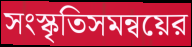
সংস্কৃতিসমন্বয়ের